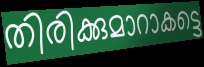
തിരിക്കുമാറാകട്ടെ